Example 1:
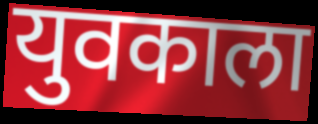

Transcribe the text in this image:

युवकाला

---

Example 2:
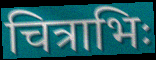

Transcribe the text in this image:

चित्राभिः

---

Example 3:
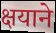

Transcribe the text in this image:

क्षयाने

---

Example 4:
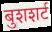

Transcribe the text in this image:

बुशशर्ट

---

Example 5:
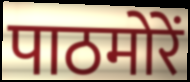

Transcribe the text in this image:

पाठमोरें